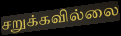
சறுக்கவில்லை